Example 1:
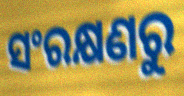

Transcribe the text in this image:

ସଂରକ୍ଷଣରୁ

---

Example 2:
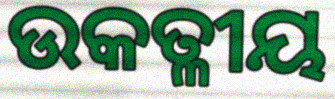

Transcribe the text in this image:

ଉକତ୍ଳୀୟ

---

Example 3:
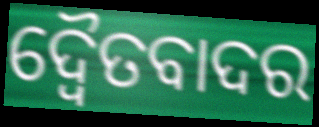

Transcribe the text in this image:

ଦ୍ୱୈତବାଦର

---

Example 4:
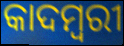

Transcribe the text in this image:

କାଦମ୍ବରୀ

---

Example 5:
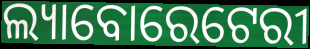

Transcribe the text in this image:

ଲ୍ୟାବୋରେଟେରୀ